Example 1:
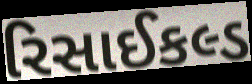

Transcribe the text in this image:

રિસાઈકલ્ડ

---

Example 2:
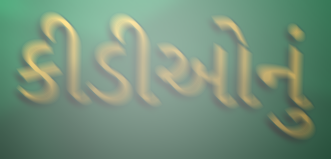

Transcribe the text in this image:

કીડીઓનું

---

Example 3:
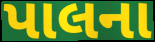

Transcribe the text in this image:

પાલના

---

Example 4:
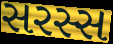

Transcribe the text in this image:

સરસ્સ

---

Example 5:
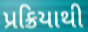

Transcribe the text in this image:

પ્રક્રિયાથી